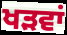
ਖੜਵਾਂ